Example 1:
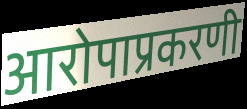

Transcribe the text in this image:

आरोपाप्रकरणी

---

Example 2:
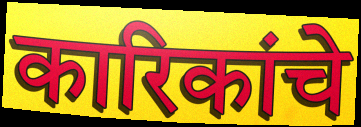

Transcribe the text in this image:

कारिकांचे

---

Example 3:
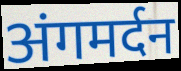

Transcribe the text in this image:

अंगमर्दन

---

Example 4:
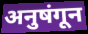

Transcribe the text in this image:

अनुषंगून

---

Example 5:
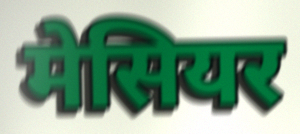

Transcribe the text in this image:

मेसियर